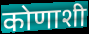
कोणाशी